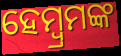
ହେମ୍ବ୍ରମଙ୍କ